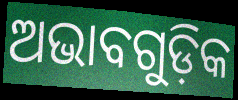
ଅଭାବଗୁଡ଼ିକ